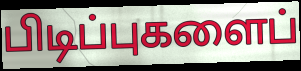
பிடிப்புகளைப்